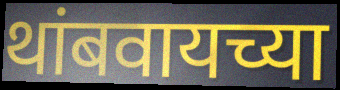
थांबवायच्या